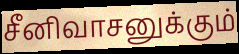
சீனிவாசனுக்கும்